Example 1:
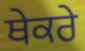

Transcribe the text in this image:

ਥੇਕਰੇ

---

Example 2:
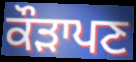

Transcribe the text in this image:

ਕੌੜਾਪਣ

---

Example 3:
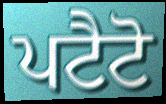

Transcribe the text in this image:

ਪਟੈਟੋ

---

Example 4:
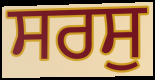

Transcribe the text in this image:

ਸਰਸੁ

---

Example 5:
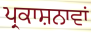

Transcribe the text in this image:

ਪ੍ਰਕਾਸ਼ਨਾਵਾਂ